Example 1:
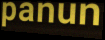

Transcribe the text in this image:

panun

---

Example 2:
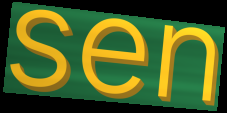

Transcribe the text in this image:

sen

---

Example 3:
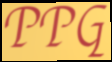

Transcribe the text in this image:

PPG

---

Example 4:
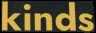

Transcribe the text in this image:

kinds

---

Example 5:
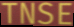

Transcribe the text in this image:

TNSE